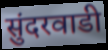
सुंदरवाडी